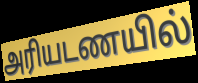
அரியடணயில்